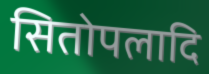
सितोपलादि